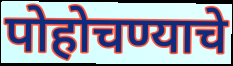
पोहोचण्याचे